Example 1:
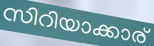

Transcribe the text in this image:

സിറിയാക്കാര്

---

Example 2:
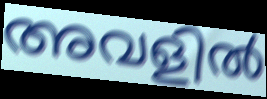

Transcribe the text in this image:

അവളിൽ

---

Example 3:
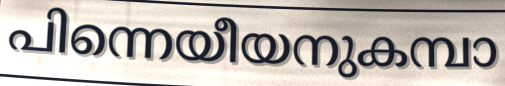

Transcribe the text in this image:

പിന്നെയീയനുകമ്പാ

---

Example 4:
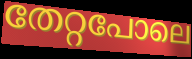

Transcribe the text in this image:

തേറ്റപോലെ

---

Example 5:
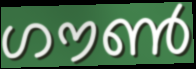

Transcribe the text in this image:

ഗൗൺ